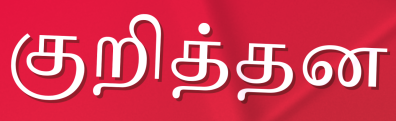
குறித்தன